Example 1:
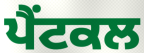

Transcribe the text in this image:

ਪੈਂਟਕਲ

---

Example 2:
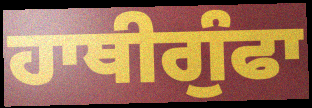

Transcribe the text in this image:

ਹਾਥੀਗੁੰਫਾ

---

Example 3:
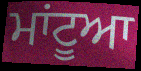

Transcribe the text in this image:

ਮਾਂਟੂਆ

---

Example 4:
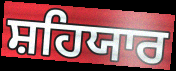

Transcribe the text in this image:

ਸ਼ਹਿਯਾਰ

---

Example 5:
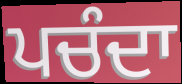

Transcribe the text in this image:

ਪਚੰਦਾ